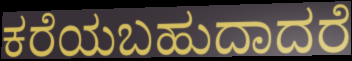
ಕರೆಯಬಹುದಾದರೆ